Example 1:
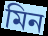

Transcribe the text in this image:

মিন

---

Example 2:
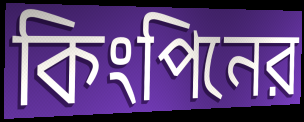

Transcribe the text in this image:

কিংপিনের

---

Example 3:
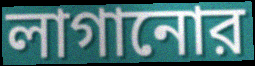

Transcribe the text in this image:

লাগানোর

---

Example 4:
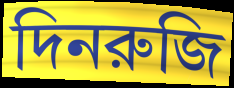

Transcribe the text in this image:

দিনরুজি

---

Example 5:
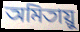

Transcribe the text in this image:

অমিতায়ু